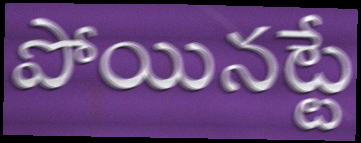
పోయినట్టే